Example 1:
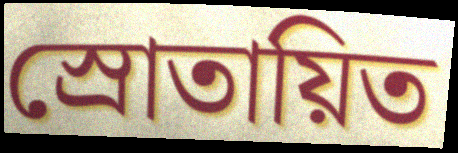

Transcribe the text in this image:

স্রোতায়িত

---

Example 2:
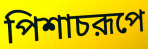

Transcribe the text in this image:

পিশাচরূপে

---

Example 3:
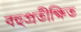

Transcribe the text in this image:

বহুপ্রতীক্ষিত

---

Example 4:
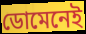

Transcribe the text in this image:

ডোমেনেই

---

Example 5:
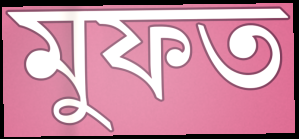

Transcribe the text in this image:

মুফত